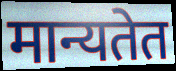
मान्यतेत